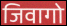
जिवागो